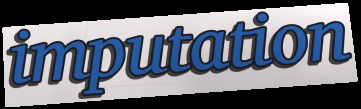
imputation